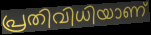
പ്രതിവിധിയാണ്